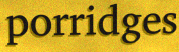
porridges